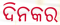
ଦିନକର